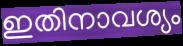
ഇതിനാവശ്യം